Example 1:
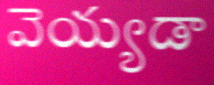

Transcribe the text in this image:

వెయ్యడా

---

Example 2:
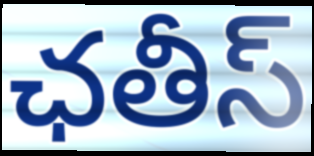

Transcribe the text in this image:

ఛతీస్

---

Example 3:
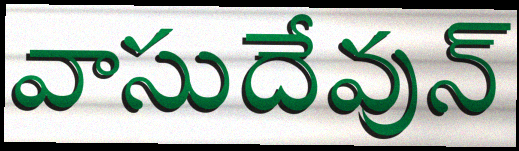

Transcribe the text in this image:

వాసుదేవున్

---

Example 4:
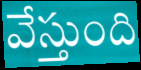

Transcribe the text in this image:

వేస్తుంది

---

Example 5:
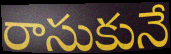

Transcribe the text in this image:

రాసుకునే